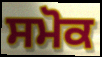
ਸਮੋਕ